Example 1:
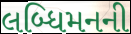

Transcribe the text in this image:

લબ્ધિમનની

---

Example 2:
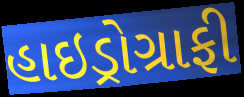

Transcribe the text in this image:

હાઇડ્રોગ્રાફી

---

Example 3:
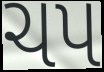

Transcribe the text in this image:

ચપ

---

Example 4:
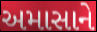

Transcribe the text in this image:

અમાસાને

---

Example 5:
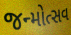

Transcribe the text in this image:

જન્મોત્સવ